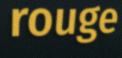
rouge